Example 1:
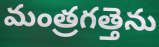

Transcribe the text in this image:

మంత్రగత్తెను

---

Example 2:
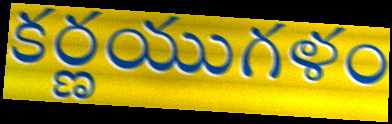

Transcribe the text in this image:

కర్ణయుగళం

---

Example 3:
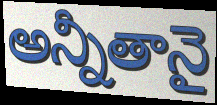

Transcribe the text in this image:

అన్నీతానై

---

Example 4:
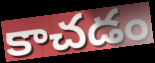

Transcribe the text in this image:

కాచడం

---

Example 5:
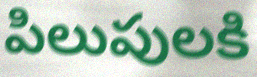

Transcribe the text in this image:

పిలుపులకి